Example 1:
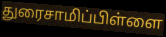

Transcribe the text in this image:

துரைசாமிப்பிள்ளை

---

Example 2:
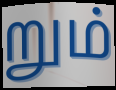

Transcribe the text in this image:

றும்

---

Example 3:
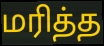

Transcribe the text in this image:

மரித்த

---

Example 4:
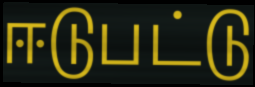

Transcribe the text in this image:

ஈடுபட்டு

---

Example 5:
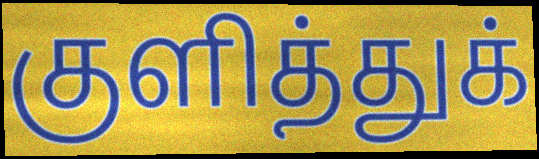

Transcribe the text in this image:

குளித்துக்